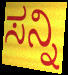
ಸನ್ನಿ